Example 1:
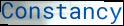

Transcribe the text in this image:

Constancy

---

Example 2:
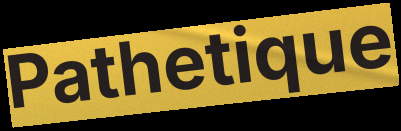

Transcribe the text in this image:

Pathetique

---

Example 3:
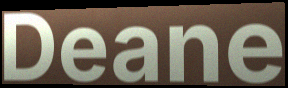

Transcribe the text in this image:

Deane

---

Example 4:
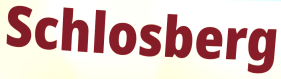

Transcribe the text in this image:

Schlosberg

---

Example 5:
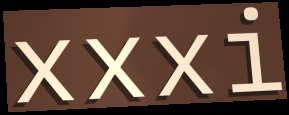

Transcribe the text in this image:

xxxi